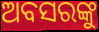
ଅବସରଙ୍କୁ